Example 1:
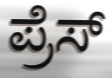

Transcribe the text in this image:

ಪ್ರೆಸ್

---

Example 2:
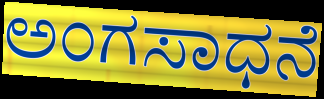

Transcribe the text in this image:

ಅಂಗಸಾಧನೆ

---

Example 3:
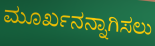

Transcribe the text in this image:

ಮೂರ್ಖನನ್ನಾಗಿಸಲು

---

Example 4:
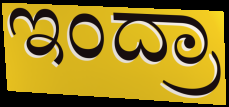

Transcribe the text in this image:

ಇಂದ್ರಾ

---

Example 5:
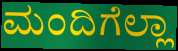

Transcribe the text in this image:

ಮಂದಿಗೆಲ್ಲಾ